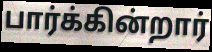
பார்க்கின்றார்